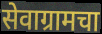
सेवाग्रामचा